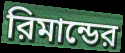
রিমান্ডের